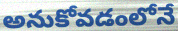
అనుకోవడంలోనే